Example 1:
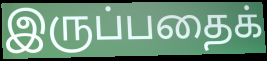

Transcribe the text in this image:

இருப்பதைக்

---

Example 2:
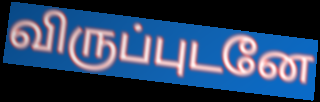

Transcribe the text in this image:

விருப்புடனே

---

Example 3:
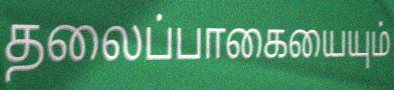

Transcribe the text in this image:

தலைப்பாகையையும்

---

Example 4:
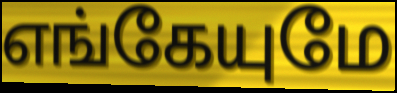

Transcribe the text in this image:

எங்கேயுமே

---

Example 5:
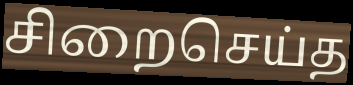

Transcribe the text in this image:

சிறைசெய்த